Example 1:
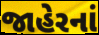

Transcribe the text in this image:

જાહેરનાં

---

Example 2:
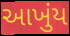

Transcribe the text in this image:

આખુંય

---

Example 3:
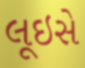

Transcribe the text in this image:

લૂઇસે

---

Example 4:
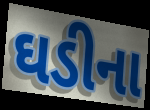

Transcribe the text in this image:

ઘડીના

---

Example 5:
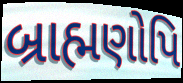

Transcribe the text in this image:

બ્રાહ્મણોપિ